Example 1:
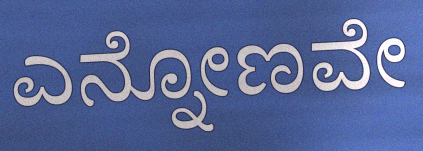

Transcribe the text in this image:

ಎನ್ನೋಣವೇ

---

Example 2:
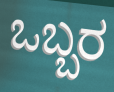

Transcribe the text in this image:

ಒಬ್ಬರ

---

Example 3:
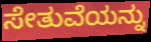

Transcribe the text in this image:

ಸೇತುವೆಯನ್ನು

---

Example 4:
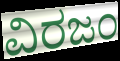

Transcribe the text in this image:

ವಿರಜಂ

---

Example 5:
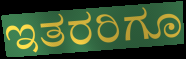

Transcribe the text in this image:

ಇತರರಿಗೂ